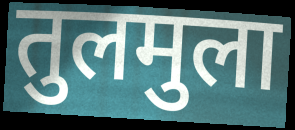
तुलमुला